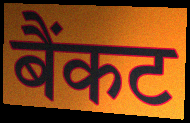
बैंकट